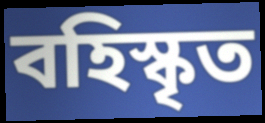
বহিস্কৃত